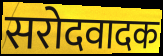
सरोदवादक